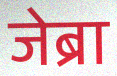
जेब्रा